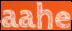
aahe